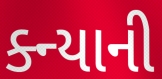
ક્ન્યાની